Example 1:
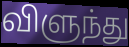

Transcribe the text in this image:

விளுந்து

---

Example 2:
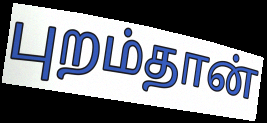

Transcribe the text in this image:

புறம்தான்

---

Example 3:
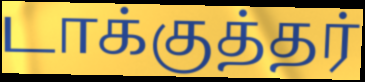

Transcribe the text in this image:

டாக்குத்தர்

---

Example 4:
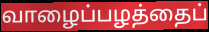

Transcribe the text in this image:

வாழைப்பழத்தைப்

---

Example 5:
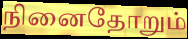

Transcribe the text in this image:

நினைதோறும்